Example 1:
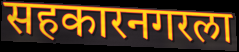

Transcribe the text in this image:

सहकारनगरला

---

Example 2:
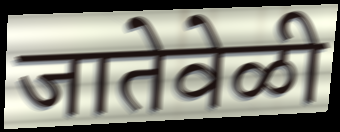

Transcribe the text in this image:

जातेवेळी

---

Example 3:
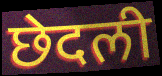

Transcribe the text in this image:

छेदली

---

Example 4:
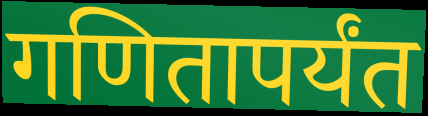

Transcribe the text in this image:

गणितापर्यंत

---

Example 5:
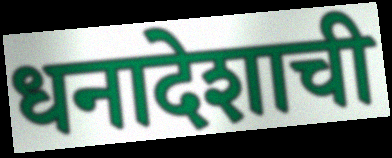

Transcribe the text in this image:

धनादेशाची